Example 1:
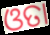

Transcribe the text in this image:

ଓତା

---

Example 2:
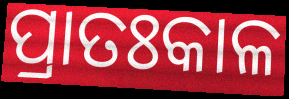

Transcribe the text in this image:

ପ୍ରାତଃକାଳ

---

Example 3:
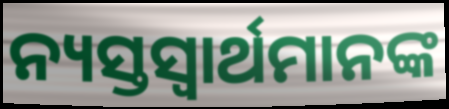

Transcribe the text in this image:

ନ୍ୟସ୍ତସ୍ଵାର୍ଥମାନଙ୍କ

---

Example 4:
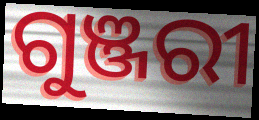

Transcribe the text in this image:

ଗୁଞ୍ଜରୀ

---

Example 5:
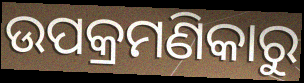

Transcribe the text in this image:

ଉପକ୍ରମଣିକାରୁ